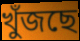
খুঁজছে